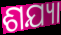
ଶଯ୍ୟା